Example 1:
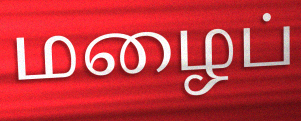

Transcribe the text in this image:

மழைப்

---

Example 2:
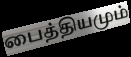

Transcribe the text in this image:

பைத்தியமும்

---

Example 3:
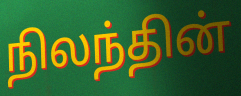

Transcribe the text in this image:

நிலந்தின்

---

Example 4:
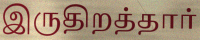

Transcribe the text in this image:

இருதிறத்தார்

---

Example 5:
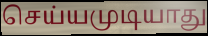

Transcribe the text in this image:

செய்யமுடியாது